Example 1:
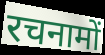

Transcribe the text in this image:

रचनामों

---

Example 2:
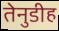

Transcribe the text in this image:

तेनुडीह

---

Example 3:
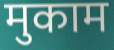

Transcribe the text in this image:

मुकाम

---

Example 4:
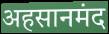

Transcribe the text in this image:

अहसानमंद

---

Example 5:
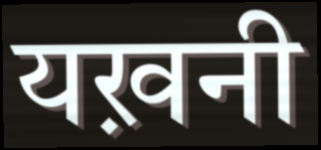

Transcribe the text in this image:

यख़नी